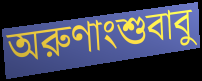
অরুণাংশুবাবু